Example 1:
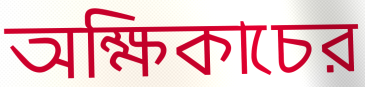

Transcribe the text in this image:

অক্ষিকাচের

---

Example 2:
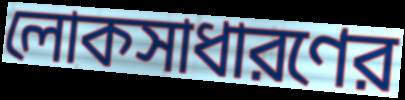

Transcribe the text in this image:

লোকসাধারণের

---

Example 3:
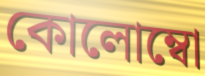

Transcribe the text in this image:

কোলোম্বো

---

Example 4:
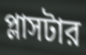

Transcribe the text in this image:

প্লাসটার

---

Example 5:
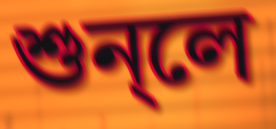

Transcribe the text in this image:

শুন্লে